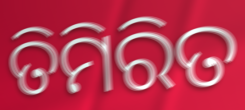
ତିମିରିତ